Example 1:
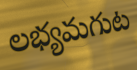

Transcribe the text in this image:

లభ్యమగుట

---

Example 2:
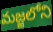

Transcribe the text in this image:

మజ్జలోని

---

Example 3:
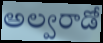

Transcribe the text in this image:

అల్వరాడో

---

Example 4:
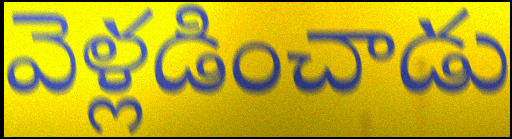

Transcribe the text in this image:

వెళ్లడించాడు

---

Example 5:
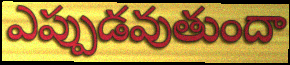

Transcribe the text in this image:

ఎప్పుడవుతుందా